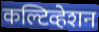
कल्टिव्हेशन